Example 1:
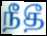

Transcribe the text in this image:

நீதீ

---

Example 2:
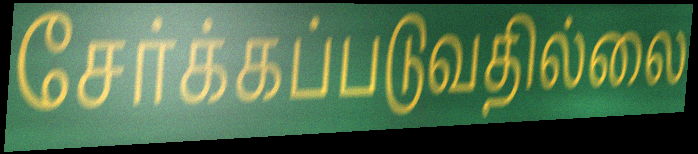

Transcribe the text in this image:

சேர்க்கப்படுவதில்லை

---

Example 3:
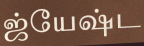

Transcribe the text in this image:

ஜ்யேஷ்ட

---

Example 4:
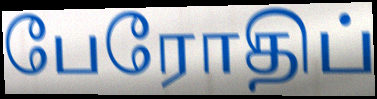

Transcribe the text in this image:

பேரோதிப்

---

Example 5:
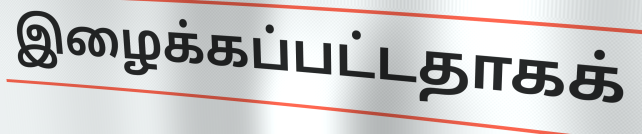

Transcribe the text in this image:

இழைக்கப்பட்டதாகக்